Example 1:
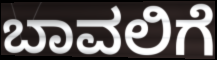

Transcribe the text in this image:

ಬಾವಲಿಗೆ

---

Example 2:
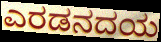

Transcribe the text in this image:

ಎರಡನದಯ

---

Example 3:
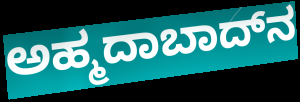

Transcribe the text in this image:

ಅಹ್ಮದಾಬಾದ್‌ನ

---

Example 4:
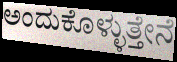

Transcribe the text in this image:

ಅಂದುಕೊಳ್ಳುತ್ತೇನೆ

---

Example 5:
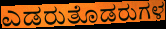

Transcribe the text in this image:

ಎಡರುತೊಡರುಗಳ